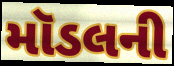
મૉડલની